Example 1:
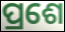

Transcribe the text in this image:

ପ୍ରଶେ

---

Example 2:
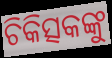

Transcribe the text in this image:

ଚିକିତ୍ସକଙ୍କୁ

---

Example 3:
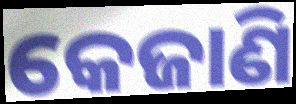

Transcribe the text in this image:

କେଜାଣି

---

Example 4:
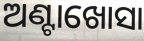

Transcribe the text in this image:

ଅଣ୍ଟାଖୋସା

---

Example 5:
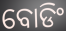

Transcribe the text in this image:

ବୋଡିଂ